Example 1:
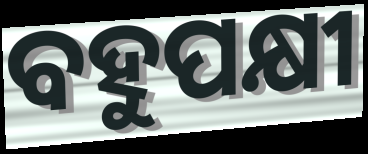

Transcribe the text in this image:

ବହୁପକ୍ଷୀ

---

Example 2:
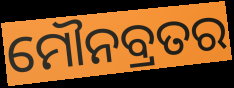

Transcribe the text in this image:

ମୌନବ୍ରତର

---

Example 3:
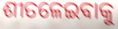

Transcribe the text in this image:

ଶୀତଳେଇବାକୁ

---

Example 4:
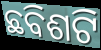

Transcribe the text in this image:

ଛବିଶଟି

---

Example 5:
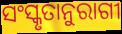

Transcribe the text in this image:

ସଂସ୍କୃତାନୁରାଗୀ